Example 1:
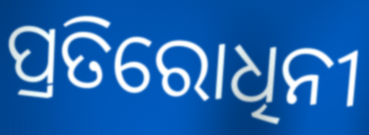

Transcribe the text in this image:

ପ୍ରତିରୋଧିନୀ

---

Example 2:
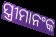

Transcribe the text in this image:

ସ୍ତ୍ରୀମାନଂକ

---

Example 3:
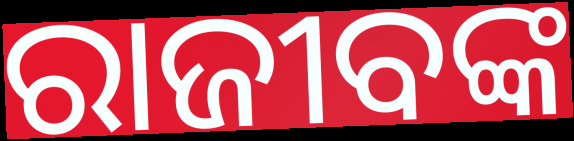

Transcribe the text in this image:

ରାଜୀବଙ୍କ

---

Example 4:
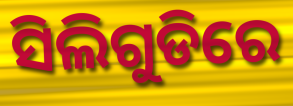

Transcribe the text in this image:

ସିଲିଗୁଡିରେ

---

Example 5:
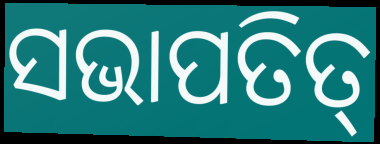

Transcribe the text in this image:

ସଭାପତିତ୍